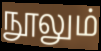
நூலும்